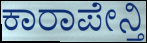
ಕಾರಾಪೇನ್ತಿ